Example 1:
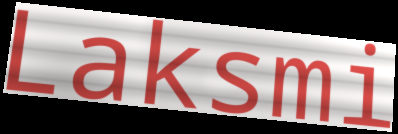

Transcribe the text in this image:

Laksmi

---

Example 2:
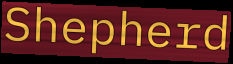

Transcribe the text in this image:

Shepherd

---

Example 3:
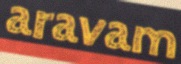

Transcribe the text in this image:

aravam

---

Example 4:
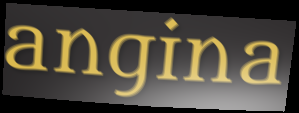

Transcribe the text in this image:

angina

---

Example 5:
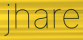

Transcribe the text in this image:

jhare